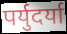
पर्युदर्या